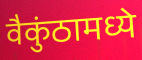
वैकुंठामध्ये